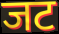
जट